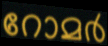
റോമർ